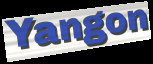
Yangon